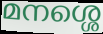
മനശ്ശെ